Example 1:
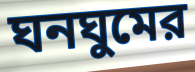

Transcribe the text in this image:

ঘনঘুমের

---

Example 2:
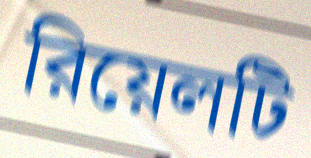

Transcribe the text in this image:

রিয়েলটি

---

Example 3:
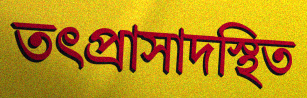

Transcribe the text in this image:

তৎপ্রাসাদস্থিত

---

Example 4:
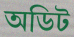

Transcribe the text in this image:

অডিট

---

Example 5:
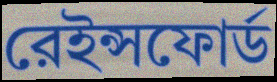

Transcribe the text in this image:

রেইন্সফোর্ড